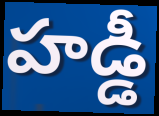
హడ్డీ